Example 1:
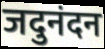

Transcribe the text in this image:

जदुनंदन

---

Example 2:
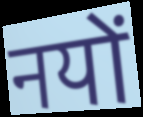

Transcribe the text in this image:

नयों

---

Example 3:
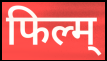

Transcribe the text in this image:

फिल्म्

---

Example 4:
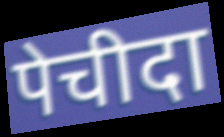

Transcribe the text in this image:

पेचीदा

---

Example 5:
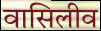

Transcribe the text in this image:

वासिलीव